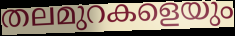
തലമുറകളെയും